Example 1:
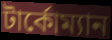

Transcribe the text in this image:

টার্কোম্যান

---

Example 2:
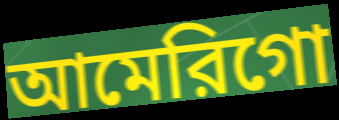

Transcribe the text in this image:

আমেরিগো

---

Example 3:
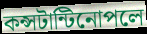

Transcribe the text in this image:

কন্সটান্টিনোপলে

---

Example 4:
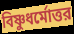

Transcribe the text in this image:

বিষ্ণুধর্মোত্তর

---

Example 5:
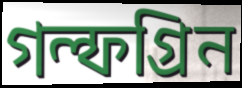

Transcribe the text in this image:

গল্ফগ্রিন